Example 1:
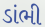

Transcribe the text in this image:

ડાંભી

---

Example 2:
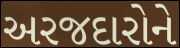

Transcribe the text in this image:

અરજદારોને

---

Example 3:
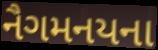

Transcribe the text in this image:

નૈગમનયના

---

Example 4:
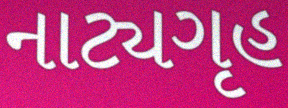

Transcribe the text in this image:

નાટ્યગૃહ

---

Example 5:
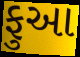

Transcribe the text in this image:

ફુઆ